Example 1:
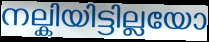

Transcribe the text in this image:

നല്കിയിട്ടില്ലയോ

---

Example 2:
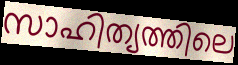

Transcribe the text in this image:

സാഹിത്യത്തിലെ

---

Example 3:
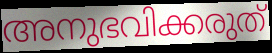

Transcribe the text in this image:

അനുഭവിക്കരുത്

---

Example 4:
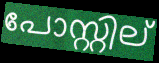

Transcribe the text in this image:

പോസ്റ്റില്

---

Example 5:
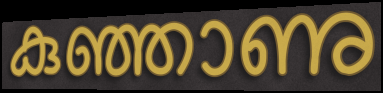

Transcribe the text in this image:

കുഞ്ഞാണു